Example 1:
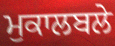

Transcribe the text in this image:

ਮੁਕਾਲਬਲੇ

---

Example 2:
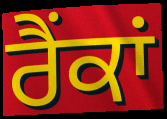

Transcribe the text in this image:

ਰੈਂਕਾਂ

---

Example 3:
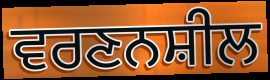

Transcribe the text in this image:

ਵਰਣਨਸ਼ੀਲ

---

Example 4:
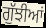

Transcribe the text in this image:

ਗੁੱਝੀਆਂ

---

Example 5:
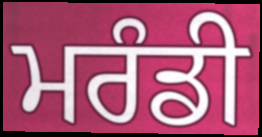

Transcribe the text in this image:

ਮਰੰਡੀ